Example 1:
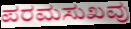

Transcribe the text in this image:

ಪರಮಸುಖವು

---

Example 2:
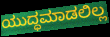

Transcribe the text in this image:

ಯುದ್ಧಮಾಡಲಿಲ್ಲ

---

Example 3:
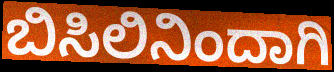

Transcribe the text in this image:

ಬಿಸಿಲಿನಿಂದಾಗಿ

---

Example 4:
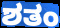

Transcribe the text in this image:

ಶತಂ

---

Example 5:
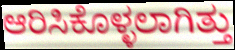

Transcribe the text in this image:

ಆರಿಸಿಕೊಳ್ಳಲಾಗಿತ್ತು